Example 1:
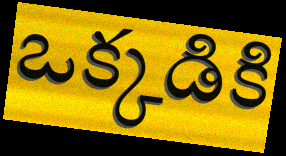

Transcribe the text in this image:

ఒక్కడికి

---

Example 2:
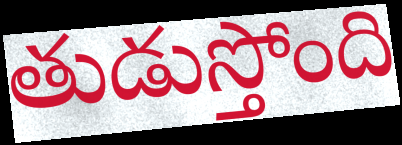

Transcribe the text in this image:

తుడుస్తోంది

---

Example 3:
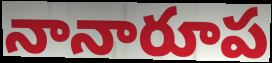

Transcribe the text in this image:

నానారూప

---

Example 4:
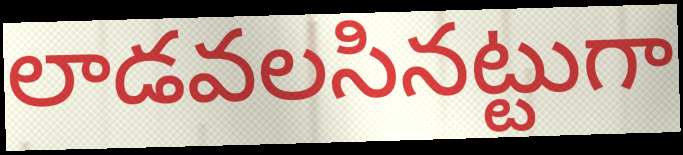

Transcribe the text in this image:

లాడవలసినట్టుగా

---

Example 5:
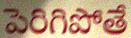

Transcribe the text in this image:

పెరిగిపోతే